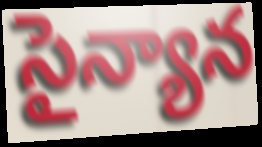
సైన్యాన